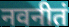
नवनीतं